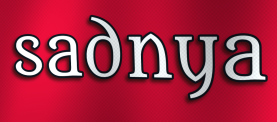
sadnya